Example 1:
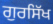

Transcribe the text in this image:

ਗੁਰਸਿੱਖ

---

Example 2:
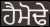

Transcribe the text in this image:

ਹੈਮੋਢੇ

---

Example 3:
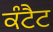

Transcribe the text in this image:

ਕੰਟੈਟ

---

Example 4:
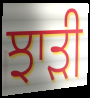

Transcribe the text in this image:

ਝਾੜੀ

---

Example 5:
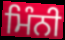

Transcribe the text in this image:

ਮਿੰਨੀ